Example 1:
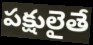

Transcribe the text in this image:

పక్షులైతే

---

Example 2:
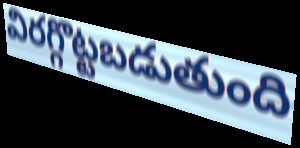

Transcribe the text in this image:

విరగ్గొట్టబడుతుంది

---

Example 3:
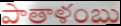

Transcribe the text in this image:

పాతాళంబు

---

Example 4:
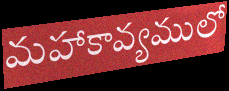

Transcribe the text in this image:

మహాకావ్యములో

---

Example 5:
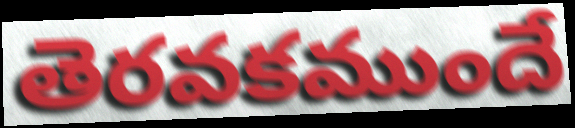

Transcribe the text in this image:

తెరవకముందే